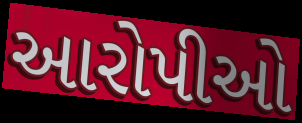
આરોપીઓ